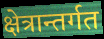
क्षेत्रान्‍तर्गत